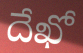
దేఖో